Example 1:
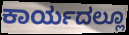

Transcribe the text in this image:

ಕಾರ್ಯದಲ್ಲೂ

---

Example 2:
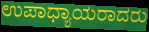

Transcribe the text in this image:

ಉಪಾಧ್ಯಾಯರಾದರು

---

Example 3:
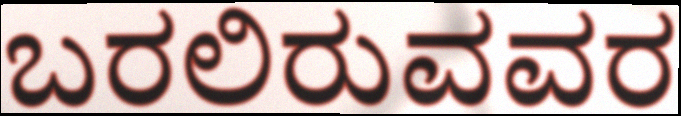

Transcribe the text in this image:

ಬರಲಿರುವವರ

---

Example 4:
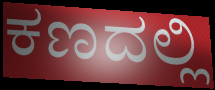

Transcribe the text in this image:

ಕಣದಲ್ಲಿ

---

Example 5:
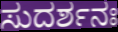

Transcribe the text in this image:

ಸುದರ್ಶನಃ